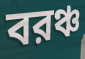
বরঞ্চ